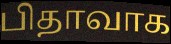
பிதாவாக